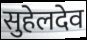
सुहेलदेव